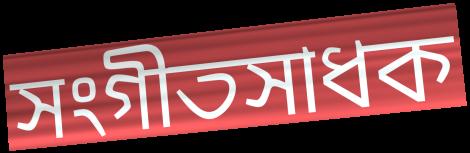
সংগীতসাধক